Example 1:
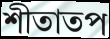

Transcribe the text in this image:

শীতাতপ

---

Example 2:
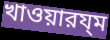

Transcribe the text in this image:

খাওয়ারয্ম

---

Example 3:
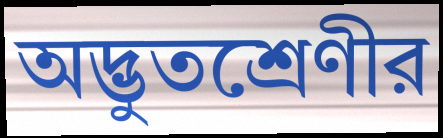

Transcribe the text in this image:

অদ্ভুতশ্রেণীর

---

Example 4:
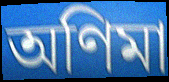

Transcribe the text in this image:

অণিমা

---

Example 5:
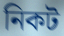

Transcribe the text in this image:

নিকট